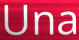
Una